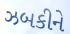
ઝબકીને